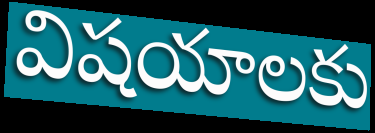
విషయాలకు